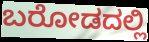
ಬರೋಡದಲ್ಲಿ